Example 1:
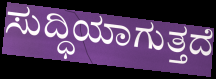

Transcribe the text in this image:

ಸುದ್ಧಿಯಾಗುತ್ತದೆ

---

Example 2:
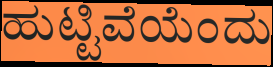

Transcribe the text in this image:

ಹುಟ್ಟಿವೆಯೆಂದು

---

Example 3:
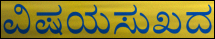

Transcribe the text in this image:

ವಿಷಯಸುಖದ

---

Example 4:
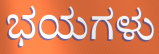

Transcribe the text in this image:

ಭಯಗಳು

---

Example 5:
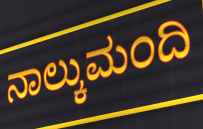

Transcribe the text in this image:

ನಾಲ್ಕುಮಂದಿ